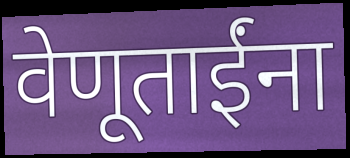
वेणूताईंना